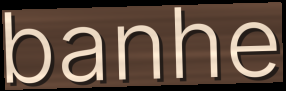
banhe